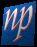
np